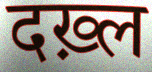
दख़्ल